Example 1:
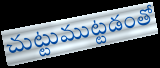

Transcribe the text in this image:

చుట్టుముట్టడంతో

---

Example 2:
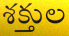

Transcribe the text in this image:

శక్తుల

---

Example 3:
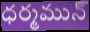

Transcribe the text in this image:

ధర్మమున్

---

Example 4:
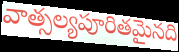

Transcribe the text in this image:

వాత్సల్యపూరితమైనది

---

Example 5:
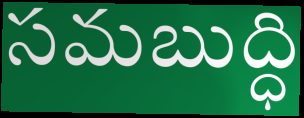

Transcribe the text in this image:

సమబుద్ధి